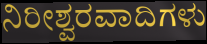
ನಿರೀಶ್ವರವಾದಿಗಳು